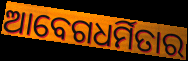
ଆବେଗଧର୍ମିତାର